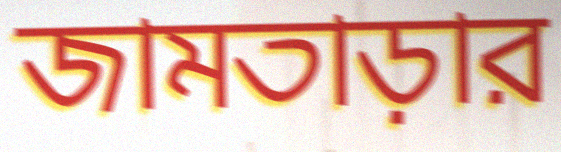
জামতাড়ার